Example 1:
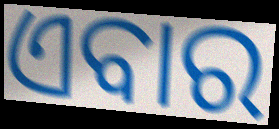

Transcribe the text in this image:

ଏବାର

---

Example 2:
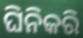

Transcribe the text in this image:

ଘିନିକରି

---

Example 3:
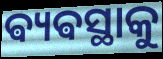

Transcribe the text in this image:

ଵ୍ୟଵସ୍ଥାକୁ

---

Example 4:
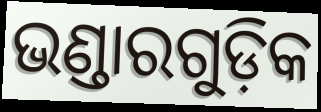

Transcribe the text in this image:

ଭଣ୍ଡାରଗୁଡ଼ିକ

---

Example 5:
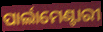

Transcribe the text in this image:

ପାର୍ଲାମେଣ୍ଟାରୀ